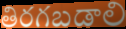
తిరగబడాలి